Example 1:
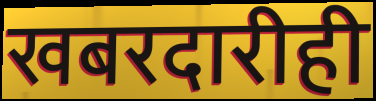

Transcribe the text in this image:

खबरदारीही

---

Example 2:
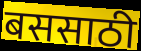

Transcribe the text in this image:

बससाठी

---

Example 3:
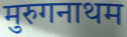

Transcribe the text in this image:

मुरुगनाथम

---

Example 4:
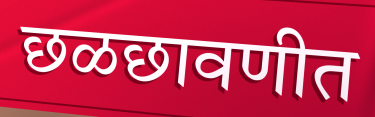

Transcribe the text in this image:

छळछावणीत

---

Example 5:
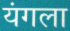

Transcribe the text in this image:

यंगला